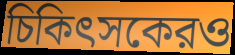
চিকিৎসকেরও